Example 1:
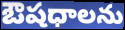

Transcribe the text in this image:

ఔషధాలను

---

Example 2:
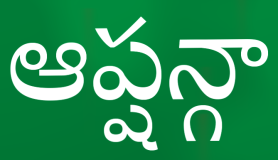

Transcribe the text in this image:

ఆప్షన్గా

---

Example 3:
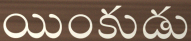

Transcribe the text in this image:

యింకుడు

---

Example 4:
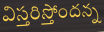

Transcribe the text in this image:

విస్తరిస్తోందన్న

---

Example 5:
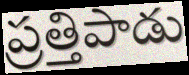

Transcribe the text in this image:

ప్రత్తిపాడు